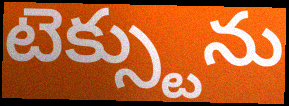
టెక్స్టును